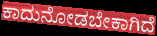
ಕಾದುನೋಡಬೇಕಾಗಿದೆ